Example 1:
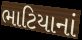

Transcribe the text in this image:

ભાટિયાનાં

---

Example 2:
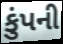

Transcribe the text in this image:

કુંપની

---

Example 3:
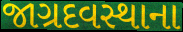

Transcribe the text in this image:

જાગ્રદવસ્થાના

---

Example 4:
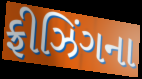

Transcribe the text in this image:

ફ્રીઝિંગના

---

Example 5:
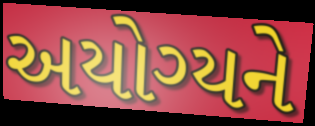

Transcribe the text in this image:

અયોગ્યને